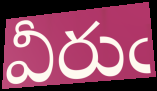
వీరుఁ